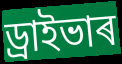
ড্ৰাইভাৰ